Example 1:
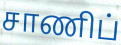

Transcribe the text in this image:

சாணிப்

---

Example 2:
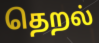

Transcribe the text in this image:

தெறல்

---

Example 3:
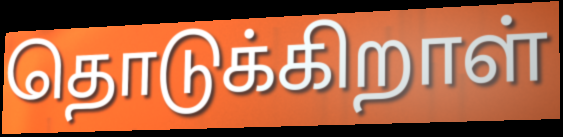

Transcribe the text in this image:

தொடுக்கிறாள்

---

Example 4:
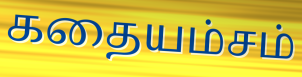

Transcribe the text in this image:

கதையம்சம்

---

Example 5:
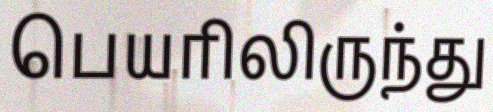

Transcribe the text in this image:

பெயரிலிருந்து